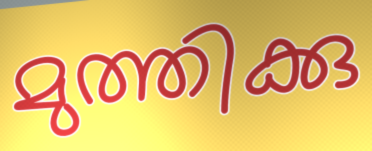
മുത്തിക്കു